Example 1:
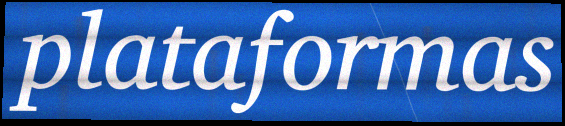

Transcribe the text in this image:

plataformas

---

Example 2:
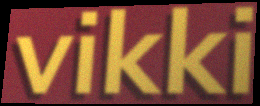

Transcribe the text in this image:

vikki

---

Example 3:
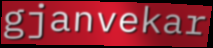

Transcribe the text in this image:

gjanvekar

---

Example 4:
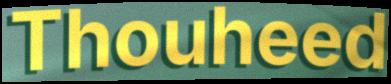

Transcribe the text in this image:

Thouheed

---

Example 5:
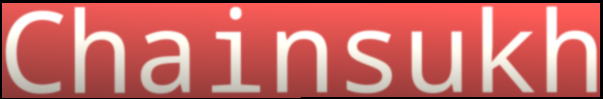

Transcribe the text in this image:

Chainsukh